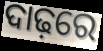
ଦାଢ଼ରେ